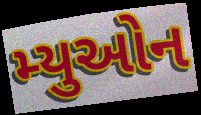
મ્યુઓન